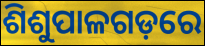
ଶିଶୁପାଳଗଡ଼ରେ